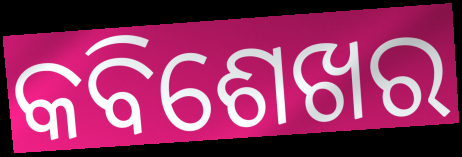
କବିଶେଖର